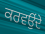
ਕਰਵਉਂਦੇ